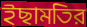
ইছামতির